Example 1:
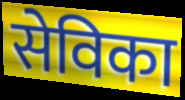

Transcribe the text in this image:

सेविका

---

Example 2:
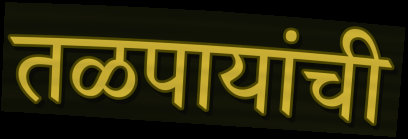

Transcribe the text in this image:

तळपायांची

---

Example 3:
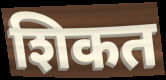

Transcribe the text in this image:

शिकत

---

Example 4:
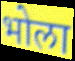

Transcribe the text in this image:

भोला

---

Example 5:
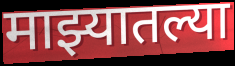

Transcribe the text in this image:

माझ्यातल्या